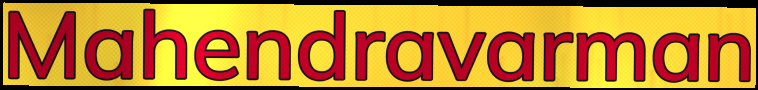
Mahendravarman